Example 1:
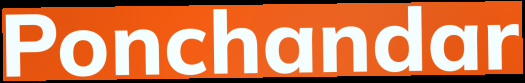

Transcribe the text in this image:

Ponchandar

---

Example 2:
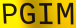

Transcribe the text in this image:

PGIM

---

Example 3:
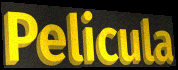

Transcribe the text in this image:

Pelicula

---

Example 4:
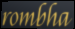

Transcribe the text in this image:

rombha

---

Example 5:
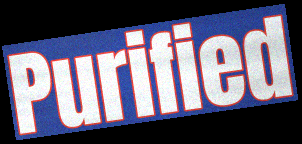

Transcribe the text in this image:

Purified